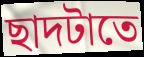
ছাদটাতে